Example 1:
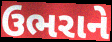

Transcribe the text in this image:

ઉભરાને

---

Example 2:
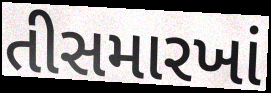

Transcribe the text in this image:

તીસમારખાં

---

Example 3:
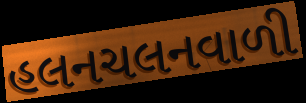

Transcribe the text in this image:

હલનચલનવાળી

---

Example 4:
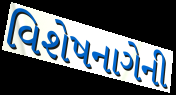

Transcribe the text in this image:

વિશેષનાગેની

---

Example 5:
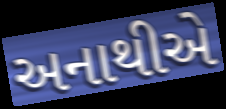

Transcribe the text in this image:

અનાથીએ